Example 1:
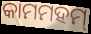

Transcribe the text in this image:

କାମମହମ୍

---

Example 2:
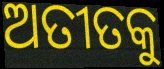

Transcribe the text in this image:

ଅତୀତକୁ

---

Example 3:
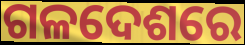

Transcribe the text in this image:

ଗଳଦେଶରେ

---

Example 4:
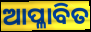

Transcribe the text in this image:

ଆପ୍ଳାବିତ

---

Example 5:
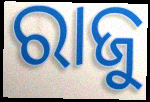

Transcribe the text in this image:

ରାଜୁ